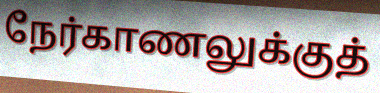
நேர்காணலுக்குத்